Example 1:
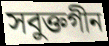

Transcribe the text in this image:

সবুক্তগীন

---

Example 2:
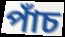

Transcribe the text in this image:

পাঁচ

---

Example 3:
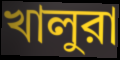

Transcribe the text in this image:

খালুরা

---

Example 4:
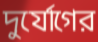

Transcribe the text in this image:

দুর্যোগের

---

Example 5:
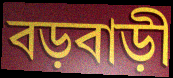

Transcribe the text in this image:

বড়বাড়ী